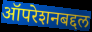
ऑपरेशनबद्दल